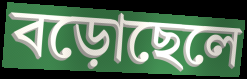
বড়োছেলে